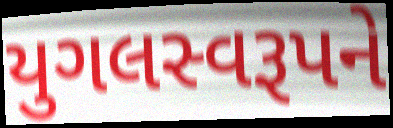
યુગલસ્વરૂપને